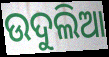
ଉଦୁଲିଆ